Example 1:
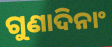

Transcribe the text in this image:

ଗୁଣାଦିନାଂ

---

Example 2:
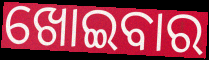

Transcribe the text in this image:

ଖୋଇବାର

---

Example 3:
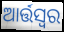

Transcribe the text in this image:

ଆର୍ତ୍ତସ୍ୱର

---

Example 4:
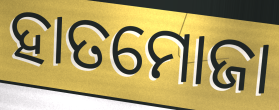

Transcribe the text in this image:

ହାତମୋଜା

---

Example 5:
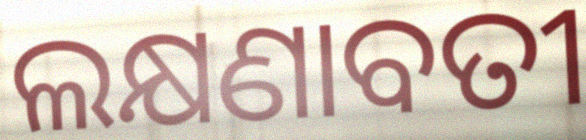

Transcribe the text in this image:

ଲକ୍ଷଣାବତୀ